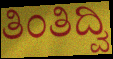
ತಿಂತಿದ್ವಿ